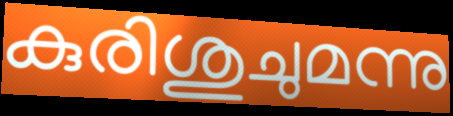
കുരിശുചുമന്നു